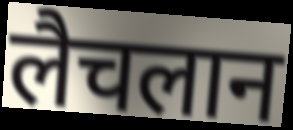
लैचलान